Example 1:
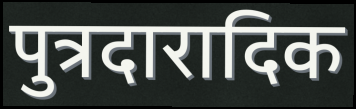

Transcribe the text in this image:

पुत्रदारादिक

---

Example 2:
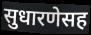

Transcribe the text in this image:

सुधारणेसह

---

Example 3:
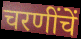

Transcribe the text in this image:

चरणींचें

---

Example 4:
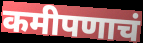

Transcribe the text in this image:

कमीपणाचं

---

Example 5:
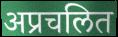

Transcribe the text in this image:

अप्रचलित